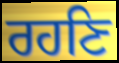
ਰਹਣਿ